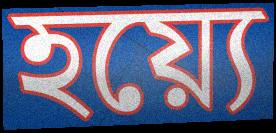
হয়্যে